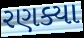
રણક્યા